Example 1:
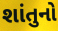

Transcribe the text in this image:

શાંતુનો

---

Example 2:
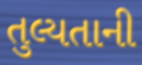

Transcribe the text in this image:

તુલ્યતાની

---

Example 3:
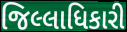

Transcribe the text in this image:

જિલ્લાધિકારી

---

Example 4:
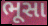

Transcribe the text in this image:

ભૂસા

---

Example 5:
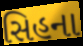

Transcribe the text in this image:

સિહના